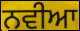
ਨਵੀਆ